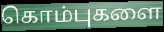
கொம்புகளை